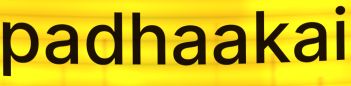
padhaakai